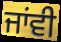
ਜਾਂਵੀ